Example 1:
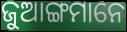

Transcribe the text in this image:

ଜୁଆଙ୍ଗମାନେ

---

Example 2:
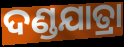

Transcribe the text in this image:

ଦଣ୍ଡଯାତ୍ରା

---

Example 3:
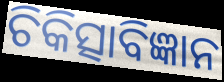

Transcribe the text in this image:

ଚିକିତ୍ସାବିଜ୍ଞାନ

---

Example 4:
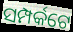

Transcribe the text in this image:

ସମ୍ପର୍କଟେ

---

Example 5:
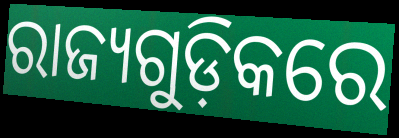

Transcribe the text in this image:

ରାଜ୍ୟଗୁଡ଼ିକରେ